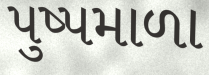
પુષ્પમાળા